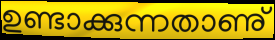
ഉണ്ടാക്കുന്നതാണു്